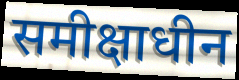
समीक्षाधीन